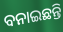
ବନାଇଛନ୍ତି